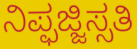
ನಿಪ್ಫಜ್ಜಿಸ್ಸತಿ